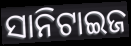
ସାନିଟାଇଜ